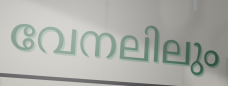
വേനലിലും